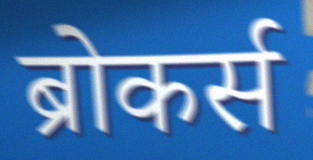
ब्रोकर्स